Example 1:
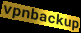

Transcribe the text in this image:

vpnbackup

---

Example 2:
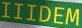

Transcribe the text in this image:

IIIDEM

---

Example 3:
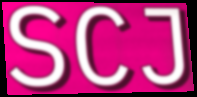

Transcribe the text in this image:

SCJ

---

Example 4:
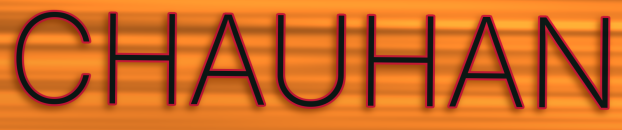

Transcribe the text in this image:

CHAUHAN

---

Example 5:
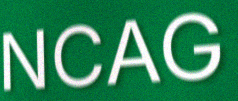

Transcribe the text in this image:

NCAG